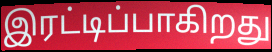
இரட்டிப்பாகிறது